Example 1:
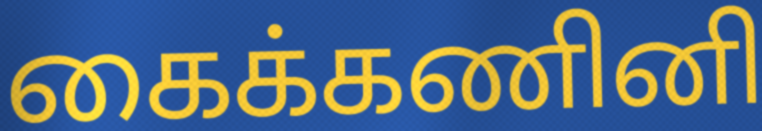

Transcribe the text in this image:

கைக்கணினி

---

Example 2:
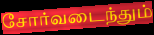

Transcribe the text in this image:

சோர்வடைந்தும்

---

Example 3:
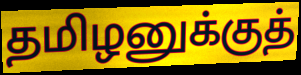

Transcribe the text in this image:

தமிழனுக்குத்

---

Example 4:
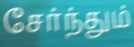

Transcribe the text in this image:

சேர்ந்தும்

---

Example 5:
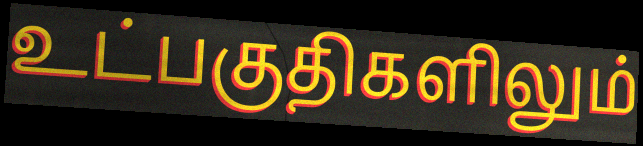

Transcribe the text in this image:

உட்பகுதிகளிலும்